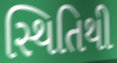
સ્થિતિથી